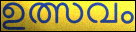
ഉത്സവം